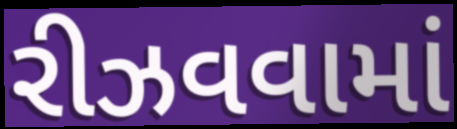
રીઝવવામાં